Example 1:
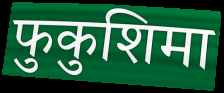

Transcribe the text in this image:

फुकुशिमा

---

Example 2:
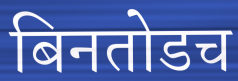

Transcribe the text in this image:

बिनतोडच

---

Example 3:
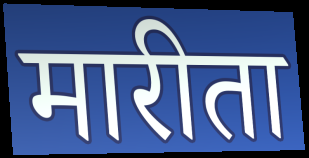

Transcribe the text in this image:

मारीता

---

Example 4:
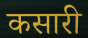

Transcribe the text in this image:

कसारी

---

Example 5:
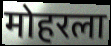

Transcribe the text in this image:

मोहरला